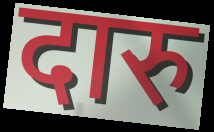
दारु